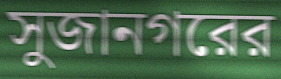
সুজানগরের